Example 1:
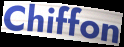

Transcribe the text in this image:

Chiffon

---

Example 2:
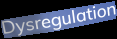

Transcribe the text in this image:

Dysregulation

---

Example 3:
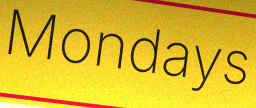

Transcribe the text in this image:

Mondays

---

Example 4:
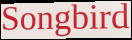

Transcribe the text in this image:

Songbird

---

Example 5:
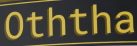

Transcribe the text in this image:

Oththa